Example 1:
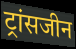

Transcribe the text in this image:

ट्रांसजीन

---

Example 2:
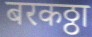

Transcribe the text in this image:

बरकठ्ठा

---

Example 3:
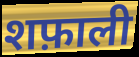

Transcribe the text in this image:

शफ़ाली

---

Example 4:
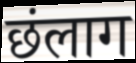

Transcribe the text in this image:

छंलाग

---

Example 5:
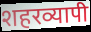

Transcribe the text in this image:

शहरव्यापी